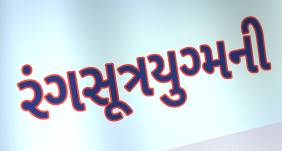
રંગસૂત્રયુગ્મની